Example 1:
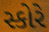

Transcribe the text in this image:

સ્કોરે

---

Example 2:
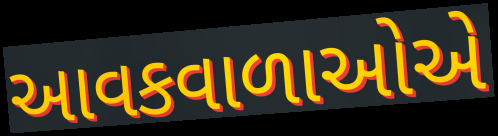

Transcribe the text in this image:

આવકવાળાઓએ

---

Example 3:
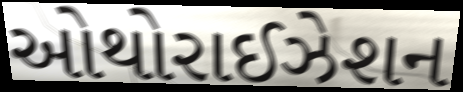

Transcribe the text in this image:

ઓથોરાઈઝેશન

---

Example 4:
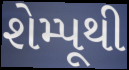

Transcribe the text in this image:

શેમ્પૂથી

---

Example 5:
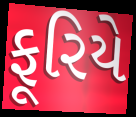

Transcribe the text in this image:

ફૂરિયે